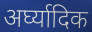
अर्घ्यादिक